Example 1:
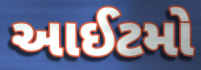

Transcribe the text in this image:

આઈટમો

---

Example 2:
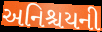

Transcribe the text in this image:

અનિશ્ચયની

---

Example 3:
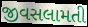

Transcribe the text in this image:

જીવસલામતી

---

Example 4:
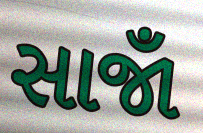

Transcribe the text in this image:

સાજાઁ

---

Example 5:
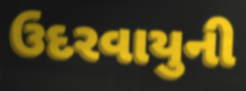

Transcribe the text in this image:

ઉદરવાયુની